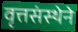
वृत्तसंस्थेने